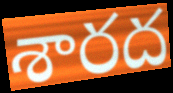
శారద